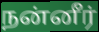
நன்னீர்